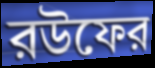
রউফের